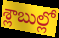
శ్లాబుల్లో